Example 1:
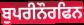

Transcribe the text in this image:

ਬੁਪਰੀਨੌਰਫਿਨ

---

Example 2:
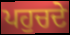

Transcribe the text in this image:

ਪਹੁਚਦੇ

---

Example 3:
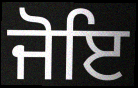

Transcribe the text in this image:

ਜੋਇ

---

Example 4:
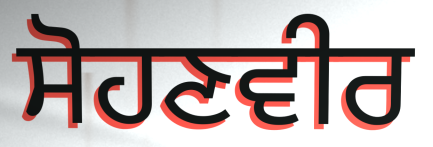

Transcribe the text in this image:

ਸੋਹਣਵੀਰ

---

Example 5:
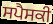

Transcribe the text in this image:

ਸਪੈਸਕੀ